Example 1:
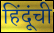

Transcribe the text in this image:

हिंदूंची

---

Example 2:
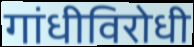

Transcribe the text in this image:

गांधीविरोधी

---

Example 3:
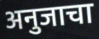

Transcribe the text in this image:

अनुजाचा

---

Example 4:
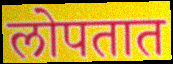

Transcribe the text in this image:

लोपतात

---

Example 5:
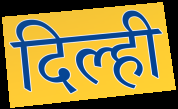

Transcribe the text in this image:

दिल्ही